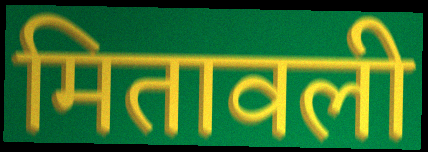
मितावली